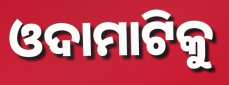
ଓଦାମାଟିକୁ